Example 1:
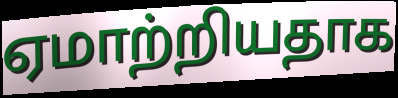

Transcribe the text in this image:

ஏமாற்றியதாக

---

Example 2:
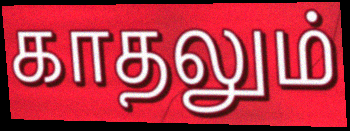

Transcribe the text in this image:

காதலும்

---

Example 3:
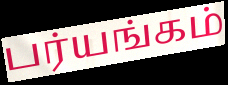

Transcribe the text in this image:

பர்யங்கம்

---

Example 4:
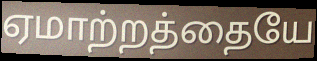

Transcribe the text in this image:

ஏமாற்றத்தையே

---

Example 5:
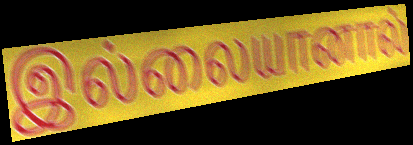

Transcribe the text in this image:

இல்லையானால்